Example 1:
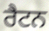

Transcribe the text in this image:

ਰੈਟਨ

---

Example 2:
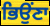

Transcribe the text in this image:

ਭਿਉਂਣਾ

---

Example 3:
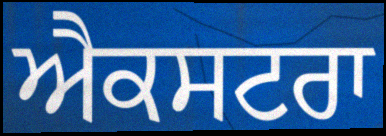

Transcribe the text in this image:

ਐਕਸਟਰਾ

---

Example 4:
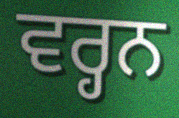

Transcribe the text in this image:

ਵਰ੍ਹਨ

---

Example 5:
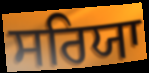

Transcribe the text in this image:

ਸਰਿਯਾ